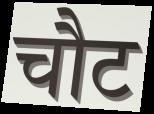
चौट